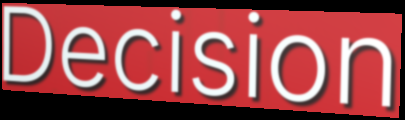
Decision